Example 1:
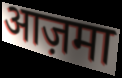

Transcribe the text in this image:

आज़मा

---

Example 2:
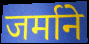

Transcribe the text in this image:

जर्माने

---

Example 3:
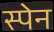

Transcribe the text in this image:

स्पेन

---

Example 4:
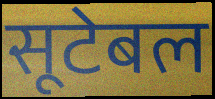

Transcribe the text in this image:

सूटेबल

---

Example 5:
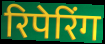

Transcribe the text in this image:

रिपेरिंग